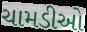
ચામડીઓ